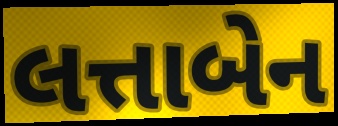
લત્તાબેન